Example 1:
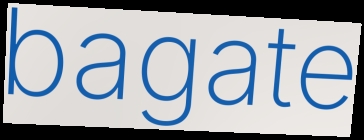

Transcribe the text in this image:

bagate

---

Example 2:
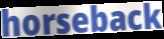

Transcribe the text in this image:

horseback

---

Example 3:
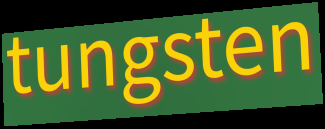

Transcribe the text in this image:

tungsten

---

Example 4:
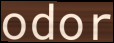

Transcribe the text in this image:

odor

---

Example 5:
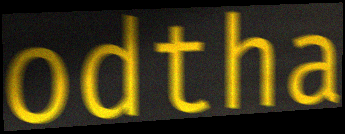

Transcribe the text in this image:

odtha